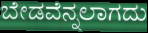
ಬೇಡವೆನ್ನಲಾಗದು